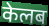
केलब